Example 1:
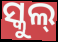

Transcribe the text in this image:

ସ୍କୁଲ୍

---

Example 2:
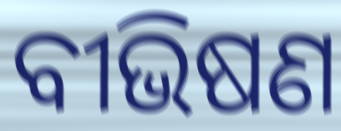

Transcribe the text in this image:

ବୀଭିଷଣ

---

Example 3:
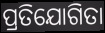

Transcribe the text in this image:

ପ୍ରତିଯୋଗିତା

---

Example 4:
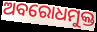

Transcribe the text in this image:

ଅବରୋଧମୁକ୍ତ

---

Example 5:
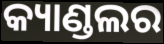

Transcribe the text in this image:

କ୍ୟାଣ୍ଡଲର